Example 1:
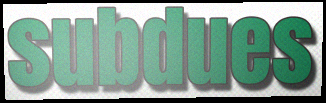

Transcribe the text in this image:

subdues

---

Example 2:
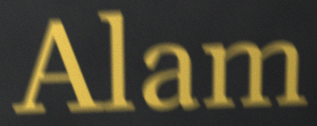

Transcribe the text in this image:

Alam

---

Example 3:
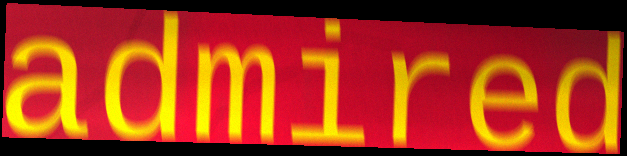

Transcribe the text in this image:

admired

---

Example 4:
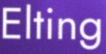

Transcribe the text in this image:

Elting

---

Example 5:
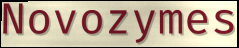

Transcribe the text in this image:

Novozymes